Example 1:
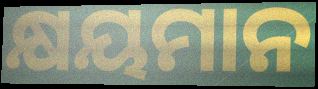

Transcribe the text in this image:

କ୍ଷୟମାନ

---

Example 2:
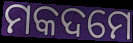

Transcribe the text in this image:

ମକଦମେ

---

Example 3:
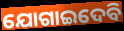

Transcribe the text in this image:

ଯୋଗାଇଦେବି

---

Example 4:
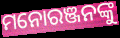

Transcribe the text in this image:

ମନୋରଞ୍ଜନଙ୍କୁ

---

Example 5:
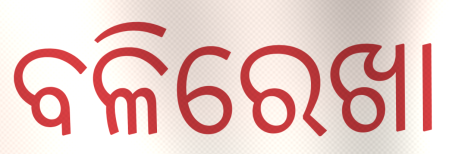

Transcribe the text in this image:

ବଳିରେଖା